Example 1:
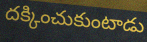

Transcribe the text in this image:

దక్కించుకుంటాడు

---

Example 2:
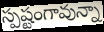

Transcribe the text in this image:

స్పష్టంగావున్నా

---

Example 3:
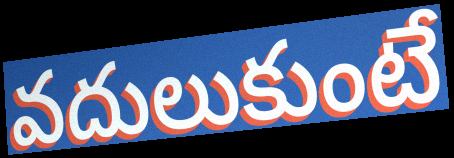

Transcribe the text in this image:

వదులుకుంటే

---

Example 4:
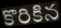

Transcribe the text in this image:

కొరికిన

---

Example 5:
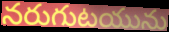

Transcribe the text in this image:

నరుగుటయును